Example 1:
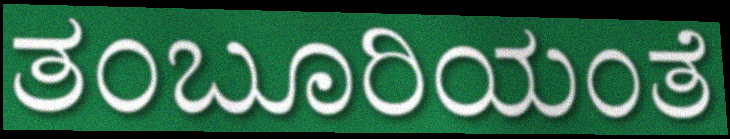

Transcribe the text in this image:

ತಂಬೂರಿಯಂತೆ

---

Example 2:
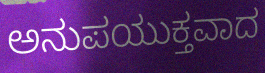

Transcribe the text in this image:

ಅನುಪಯುಕ್ತವಾದ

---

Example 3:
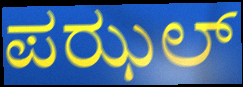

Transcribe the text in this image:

ಪಝಲ್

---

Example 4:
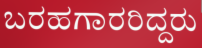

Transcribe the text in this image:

ಬರಹಗಾರರಿದ್ದರು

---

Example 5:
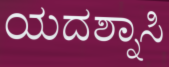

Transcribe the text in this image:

ಯದಶ್ನಾಸಿ